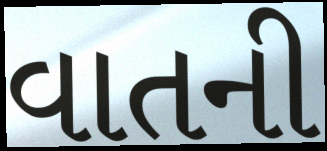
વાતની